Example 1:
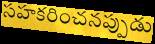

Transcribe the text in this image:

సహకరించనప్పుడు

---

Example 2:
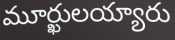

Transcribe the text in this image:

మూర్ఖులయ్యారు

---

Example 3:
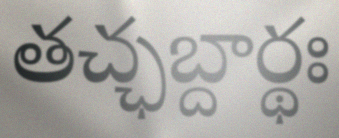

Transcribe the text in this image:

తచ్ఛబ్దార్థః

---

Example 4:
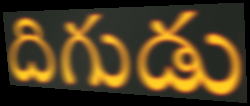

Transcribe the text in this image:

దిగుడు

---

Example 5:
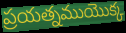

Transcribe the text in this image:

ప్రయత్నముయొక్క